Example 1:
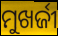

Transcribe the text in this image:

ମୁଖର୍ଜୀ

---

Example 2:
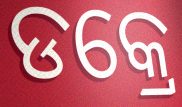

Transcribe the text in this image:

ଡକ୍ରେ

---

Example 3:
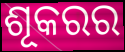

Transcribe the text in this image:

ଶୂକରର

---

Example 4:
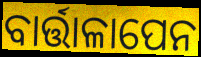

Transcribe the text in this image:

ବାର୍ତ୍ତାଳାପେନ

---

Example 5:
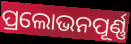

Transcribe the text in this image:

ପ୍ରଲୋଭନପୂର୍ଣ୍ଣ